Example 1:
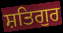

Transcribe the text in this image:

ਸ਼ਤਿਗੁਰ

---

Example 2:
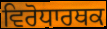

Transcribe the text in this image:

ਵਿਰੋਧਾਰਥਕ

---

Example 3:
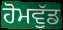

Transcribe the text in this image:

ਹੋਮਵੁੱਡ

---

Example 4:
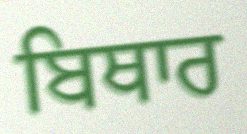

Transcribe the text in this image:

ਬਿਥਾਰ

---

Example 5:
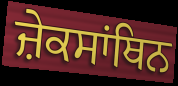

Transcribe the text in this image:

ਜ਼ੇਕਸਾਂਥਿਨ